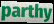
parthy